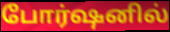
போர்ஷனில்